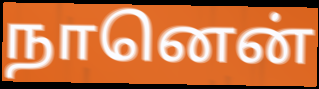
நானென்